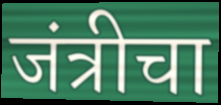
जंत्रीचा